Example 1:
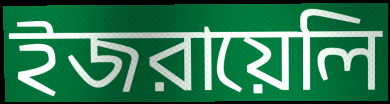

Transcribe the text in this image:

ইজরায়েলি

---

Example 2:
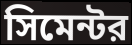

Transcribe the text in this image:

সিমেন্টর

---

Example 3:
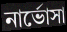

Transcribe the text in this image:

নার্ভোসা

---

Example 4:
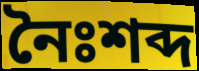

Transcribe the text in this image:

নৈঃশব্দ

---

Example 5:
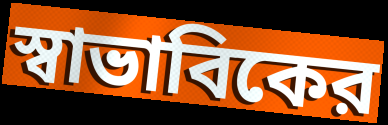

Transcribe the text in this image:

স্বাভাবিকের